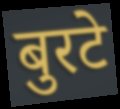
बुरटे